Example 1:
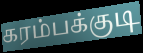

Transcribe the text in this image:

கரம்பக்குடி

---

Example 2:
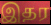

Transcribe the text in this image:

இதர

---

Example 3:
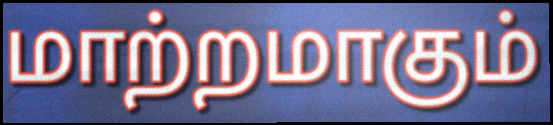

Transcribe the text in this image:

மாற்றமாகும்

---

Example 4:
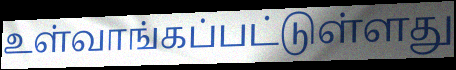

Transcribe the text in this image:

உள்வாங்கப்பட்டுள்ளது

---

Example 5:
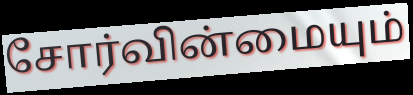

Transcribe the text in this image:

சோர்வின்மையும்